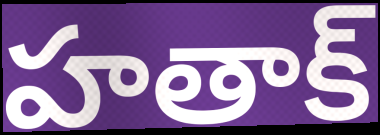
హతాక్